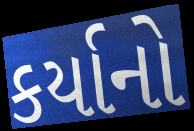
કર્યાનો